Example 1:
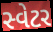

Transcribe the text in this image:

સ્વેટર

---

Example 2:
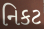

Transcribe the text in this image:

નિકટ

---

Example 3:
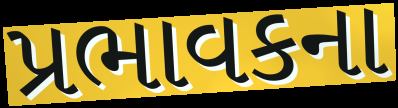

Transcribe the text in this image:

પ્રભાવકના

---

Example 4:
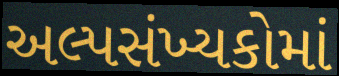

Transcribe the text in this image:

અલ્પસંખ્યકોમાં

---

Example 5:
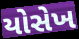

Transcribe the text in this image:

યોસેખ